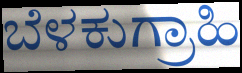
ಬೆಳಕುಗ್ರಾಹಿ